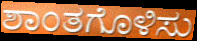
ಶಾಂತಗೊಳಿಸು